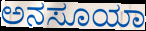
ಅನಸೂಯಾ